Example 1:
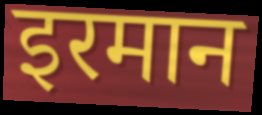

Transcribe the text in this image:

इरमान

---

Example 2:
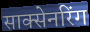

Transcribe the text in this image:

साक्सेनरिंग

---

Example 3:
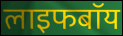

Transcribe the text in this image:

लाइफबॉय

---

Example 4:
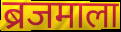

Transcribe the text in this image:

ब्रजमाला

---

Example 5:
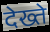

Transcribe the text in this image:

देख्ते